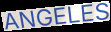
ANGELES